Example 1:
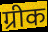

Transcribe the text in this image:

ग्रीक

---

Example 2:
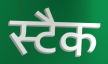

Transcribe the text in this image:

स्टैक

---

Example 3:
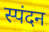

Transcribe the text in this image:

स्पंदन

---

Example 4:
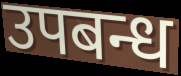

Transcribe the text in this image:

उपबन्ध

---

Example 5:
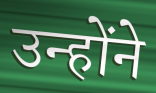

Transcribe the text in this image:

उन्होंने